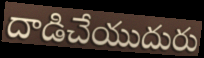
దాడిచేయుదురు